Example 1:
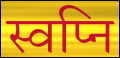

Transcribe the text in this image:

स्वप्नि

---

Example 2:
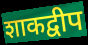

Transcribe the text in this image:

शाकद्वीप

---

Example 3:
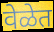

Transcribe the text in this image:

वेळेत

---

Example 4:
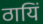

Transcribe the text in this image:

ठायिं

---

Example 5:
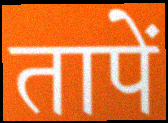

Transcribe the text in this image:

तापें